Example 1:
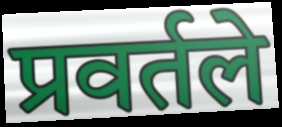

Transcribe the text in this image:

प्रवर्तले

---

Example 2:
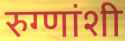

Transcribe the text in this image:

रुग्णांशी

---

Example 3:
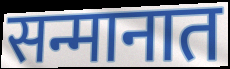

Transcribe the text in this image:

सन्मानात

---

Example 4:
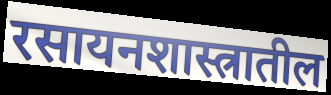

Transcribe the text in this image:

रसायनशास्त्रातील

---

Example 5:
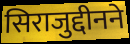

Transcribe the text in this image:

सिराजुद्दीनने